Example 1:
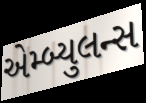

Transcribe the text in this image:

એમ્બ્યુલન્સ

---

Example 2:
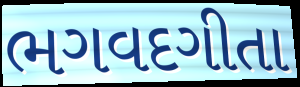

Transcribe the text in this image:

ભગવદગીતા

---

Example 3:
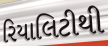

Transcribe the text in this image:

રિયાલિટીથી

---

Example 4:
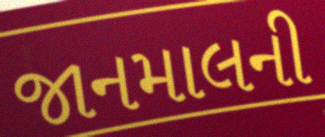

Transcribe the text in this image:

જાનમાલની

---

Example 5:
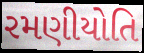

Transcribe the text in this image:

રમણીયોતિ